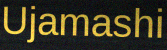
Ujamashi